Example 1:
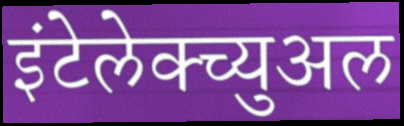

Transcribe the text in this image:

इंटेलेक्च्युअल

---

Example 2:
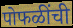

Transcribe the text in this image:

पोफळींची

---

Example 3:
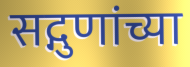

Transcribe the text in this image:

सद्गुणांच्या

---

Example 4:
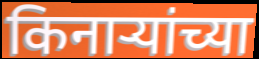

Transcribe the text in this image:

किनाऱ्यांच्या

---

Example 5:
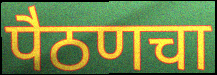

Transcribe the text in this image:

पैठणचा